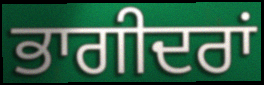
ਭਾਗੀਦਰਾਂ